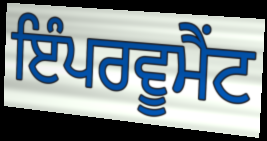
ਇੰਪਰਵੂਮੈਂਟ